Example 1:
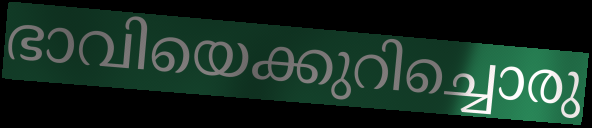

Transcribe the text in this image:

ഭാവിയെക്കുറിച്ചൊരു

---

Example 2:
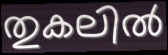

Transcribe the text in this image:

തുകലിൽ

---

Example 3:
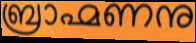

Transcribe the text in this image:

ബ്രാഹ്മണനു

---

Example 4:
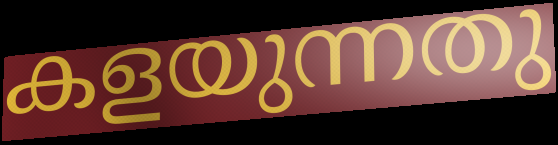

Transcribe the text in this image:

കളയുന്നതു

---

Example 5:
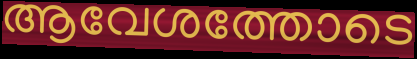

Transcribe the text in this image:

ആവേശത്തോടെ